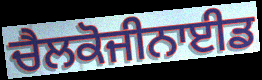
ਚੈਲਕੋਜੀਨਾਈਡ